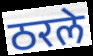
ठरले